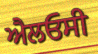
ਐਲਓਸੀ